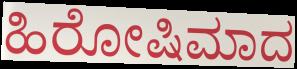
ಹಿರೋಷಿಮಾದ